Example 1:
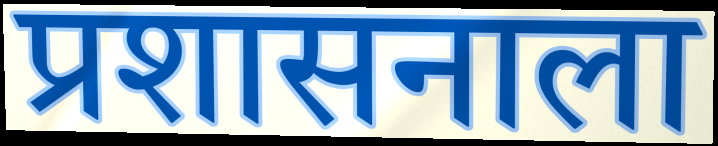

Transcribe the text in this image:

प्रशासनाला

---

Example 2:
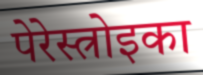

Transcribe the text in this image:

पेरेस्त्रोइका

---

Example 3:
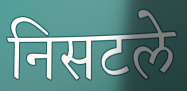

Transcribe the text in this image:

निसटले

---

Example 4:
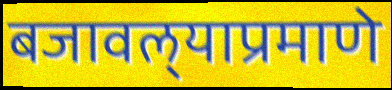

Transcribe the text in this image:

बजावल्याप्रमाणे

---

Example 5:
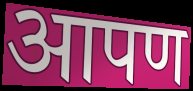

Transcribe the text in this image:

आपण